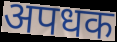
अपधक